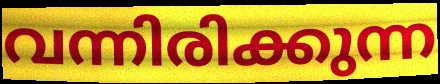
വന്നിരിക്കുന്ന